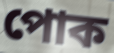
পোক